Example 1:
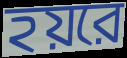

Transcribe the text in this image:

হয়রে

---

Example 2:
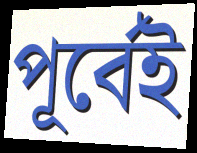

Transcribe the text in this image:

পূর্বেই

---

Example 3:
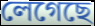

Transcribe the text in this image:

লেগেছে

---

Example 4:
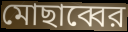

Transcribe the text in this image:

মোছাব্বের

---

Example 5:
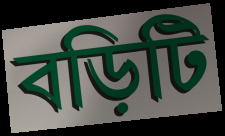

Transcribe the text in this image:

বড়িটি